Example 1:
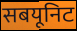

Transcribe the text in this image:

सबयूनिट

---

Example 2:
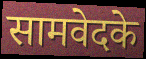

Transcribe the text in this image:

सामवेदके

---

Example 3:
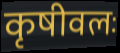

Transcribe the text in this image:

कृषीवलः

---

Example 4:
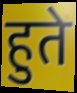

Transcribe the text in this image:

हुते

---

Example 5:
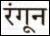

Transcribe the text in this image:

रंगून